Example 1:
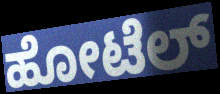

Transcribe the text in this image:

ಹೋಟೆಲ್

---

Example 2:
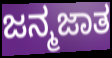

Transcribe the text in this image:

ಜನ್ಮಜಾತ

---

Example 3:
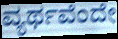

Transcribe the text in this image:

ವ್ಯರ್ಥವೆಂದೇ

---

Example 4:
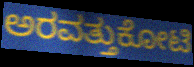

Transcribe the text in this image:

ಅರವತ್ತುಕೋಟಿ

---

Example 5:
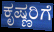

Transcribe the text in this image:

ಕೃಷ್ಣರಿಗೆ